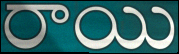
రాయి